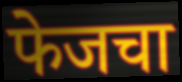
फेजचा